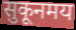
सुकूनमय